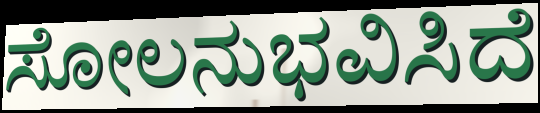
ಸೋಲನುಭವಿಸಿದೆ